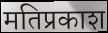
मतिप्रकाश